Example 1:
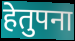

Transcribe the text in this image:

हेतुपना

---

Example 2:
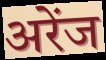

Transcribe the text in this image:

अरेंज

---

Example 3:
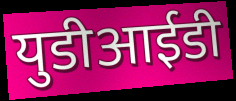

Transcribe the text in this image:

युडीआईडी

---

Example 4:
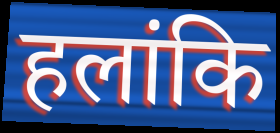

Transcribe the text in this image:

हलांकि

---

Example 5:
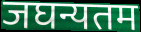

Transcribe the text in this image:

जघन्यतम